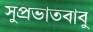
সুপ্রভাতবাবু